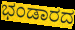
ಭಂಡಾರದ